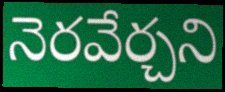
నెరవేర్చని